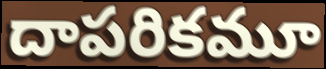
దాపరికమూ